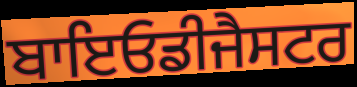
ਬਾਇਓਡੀਜੈਸਟਰ